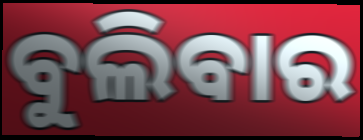
ବୁଲିବାର